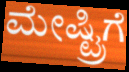
ಮೇಷ್ಟ್ರಿಗೆ